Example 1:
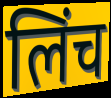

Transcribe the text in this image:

लिंच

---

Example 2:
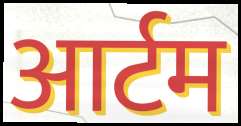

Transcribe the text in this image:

आर्टम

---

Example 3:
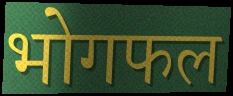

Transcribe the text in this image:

भोगफल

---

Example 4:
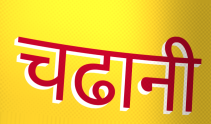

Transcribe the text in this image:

चढानी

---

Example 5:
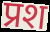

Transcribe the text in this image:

प्रश